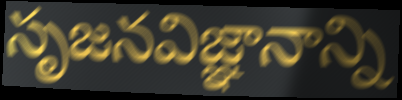
సృజనవిజ్ఞానాన్ని